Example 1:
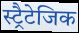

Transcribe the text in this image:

स्ट्रैटेजिक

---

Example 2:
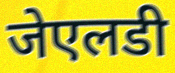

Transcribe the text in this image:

जेएलडी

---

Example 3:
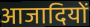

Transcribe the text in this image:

आजादियों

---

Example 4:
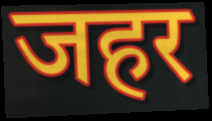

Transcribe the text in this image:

जहर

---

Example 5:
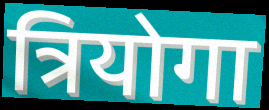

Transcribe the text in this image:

त्रियोगा